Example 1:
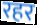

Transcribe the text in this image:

रहर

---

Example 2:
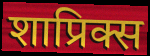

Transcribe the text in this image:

शाप्रिक्स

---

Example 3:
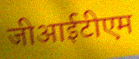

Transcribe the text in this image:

जीआईटीएम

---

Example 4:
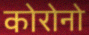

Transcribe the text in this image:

कोरोनो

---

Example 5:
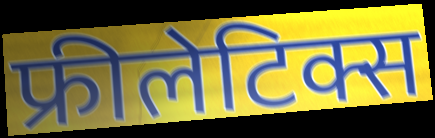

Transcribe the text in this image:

फ्रीलेटिक्स